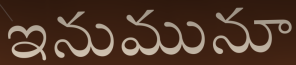
ఇనుమునూ